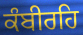
ਕੰਬੀਰਹਿ